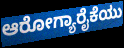
ಆರೋಗ್ಯಾರೈಕೆಯು